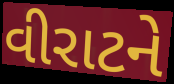
વીરાટને